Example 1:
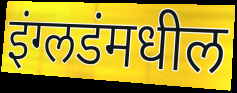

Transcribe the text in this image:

इंग्लडंमधील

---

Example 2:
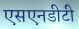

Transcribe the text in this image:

एसएनडीटी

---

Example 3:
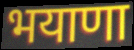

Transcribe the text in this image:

भयाणा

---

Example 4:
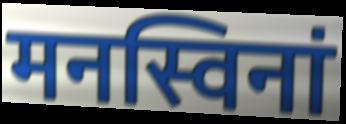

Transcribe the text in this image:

मनस्विनां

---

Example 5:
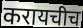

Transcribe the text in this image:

करायचीच